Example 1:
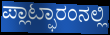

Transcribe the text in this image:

ಪ್ಲಾಟ್ಫಾರಂನಲ್ಲಿ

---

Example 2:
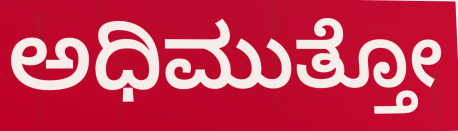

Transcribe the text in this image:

ಅಧಿಮುತ್ತೋ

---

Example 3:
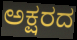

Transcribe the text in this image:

ಅಕ್ಷರದ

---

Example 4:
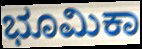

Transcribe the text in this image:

ಭೂಮಿಕಾ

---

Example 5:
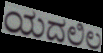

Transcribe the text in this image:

ಯದಲಿಲ